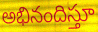
అభినందిస్తూ